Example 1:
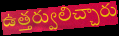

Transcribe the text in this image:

ఉత్తర్వులిచ్చారు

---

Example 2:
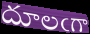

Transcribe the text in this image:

దూలఁగా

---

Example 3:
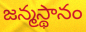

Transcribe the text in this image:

జన్మస్థానం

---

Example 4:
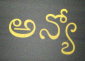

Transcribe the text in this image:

అన్యో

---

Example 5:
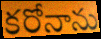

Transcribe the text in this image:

కరోనాను